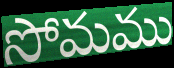
సోమము